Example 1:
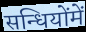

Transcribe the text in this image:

सन्धियोंमें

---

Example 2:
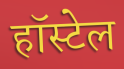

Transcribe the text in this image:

हॉस्टेल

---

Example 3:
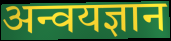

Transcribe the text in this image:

अन्वयज्ञान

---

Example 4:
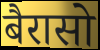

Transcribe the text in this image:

बैरासो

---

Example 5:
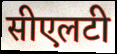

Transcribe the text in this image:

सीएलटी